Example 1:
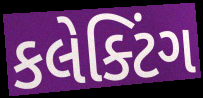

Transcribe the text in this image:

કલેક્ટિંગ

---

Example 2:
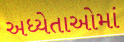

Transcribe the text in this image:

અધ્યેતાઓમાં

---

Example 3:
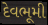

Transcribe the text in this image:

દેવભૂમી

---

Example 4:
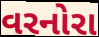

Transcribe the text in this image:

વરનોરા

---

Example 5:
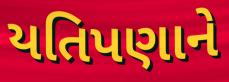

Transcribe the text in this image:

યતિપણાને